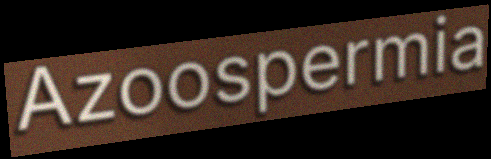
Azoospermia